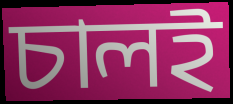
চালই